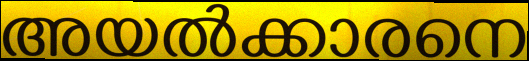
അയൽക്കാരനെ